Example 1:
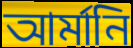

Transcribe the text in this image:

আর্মানি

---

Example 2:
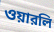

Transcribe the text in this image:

ওয়ারলি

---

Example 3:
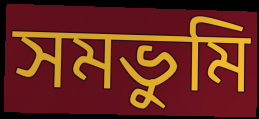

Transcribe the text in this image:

সমভুমি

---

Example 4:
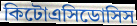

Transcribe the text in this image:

কিটোএসিডোসিস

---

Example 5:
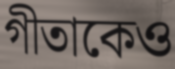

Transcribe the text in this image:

গীতাকেও